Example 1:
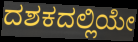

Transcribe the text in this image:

ದಶಕದಲ್ಲಿಯೇ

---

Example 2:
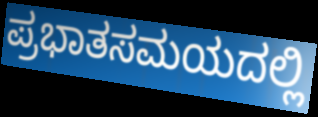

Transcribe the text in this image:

ಪ್ರಭಾತಸಮಯದಲ್ಲಿ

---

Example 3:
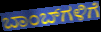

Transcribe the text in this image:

ಬಾಂಬ್‌ಗಳಿಗೆ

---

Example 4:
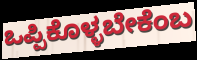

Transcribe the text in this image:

ಒಪ್ಪಿಕೊಳ್ಳಬೇಕೆಂಬ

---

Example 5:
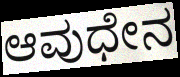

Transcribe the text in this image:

ಆವುಧೇನ